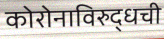
कोरोनाविरुद्धची